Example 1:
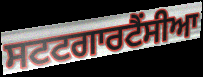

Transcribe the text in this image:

ਸਟਟਗਾਰਟੈਂਸੀਆ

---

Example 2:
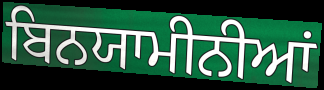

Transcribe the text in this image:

ਬਿਨਯਾਮੀਨੀਆਂ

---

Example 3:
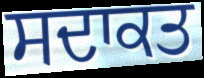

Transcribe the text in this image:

ਸਦਾਕਤ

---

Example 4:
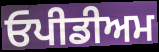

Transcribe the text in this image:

ਓਪੀਡੀਅਮ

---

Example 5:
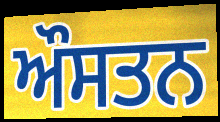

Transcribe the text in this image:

ਔਸਤਨ